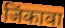
जिंकावा